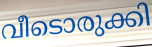
വീടൊരുക്കി